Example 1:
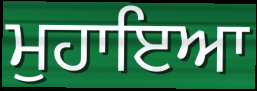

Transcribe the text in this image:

ਮੁਹਾਇਆ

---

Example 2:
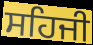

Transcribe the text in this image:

ਸਹਿਜੀ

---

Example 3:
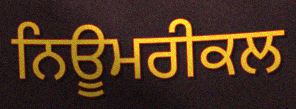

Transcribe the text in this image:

ਨਿਊਮਰੀਕਲ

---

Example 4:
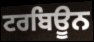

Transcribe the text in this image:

ਟਰਬਿਊਨ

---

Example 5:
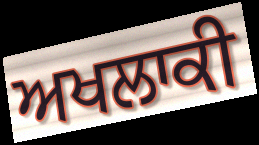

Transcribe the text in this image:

ਅਖਲਾਕੀ